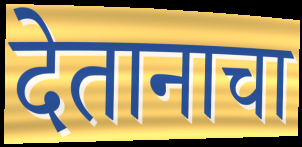
देतानाचा